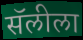
सॅलीला